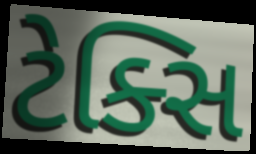
ટેક્સિ